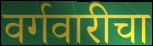
वर्गवारीचा